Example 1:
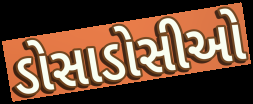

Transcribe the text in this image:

ડોસાડોસીઓ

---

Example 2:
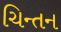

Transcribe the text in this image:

ચિન્તન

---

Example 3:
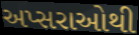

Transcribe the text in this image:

અપ્સરાઓથી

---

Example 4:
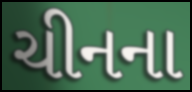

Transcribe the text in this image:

ચીનના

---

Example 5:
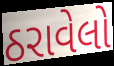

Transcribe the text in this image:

ઠરાવેલો